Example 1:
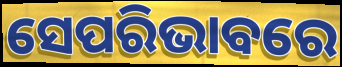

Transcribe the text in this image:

ସେପରିଭାବରେ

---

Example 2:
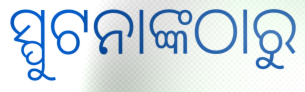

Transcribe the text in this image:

ସ୍ପୁଟନାଙ୍କଠାରୁ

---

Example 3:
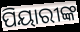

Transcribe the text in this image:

ପିୟାରୀଙ୍କ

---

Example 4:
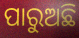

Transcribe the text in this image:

ପାରୁଅଛି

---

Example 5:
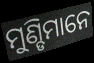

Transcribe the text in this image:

ମୁଣ୍ଡିମାନେ